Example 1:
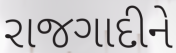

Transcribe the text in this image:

રાજગાદીને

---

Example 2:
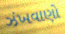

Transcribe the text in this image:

ઝંખવાણો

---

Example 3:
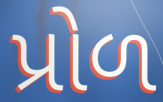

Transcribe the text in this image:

પ્રોળ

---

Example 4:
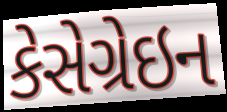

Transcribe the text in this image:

કેસેગ્રેઇન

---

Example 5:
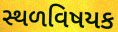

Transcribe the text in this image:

સ્થળવિષયક